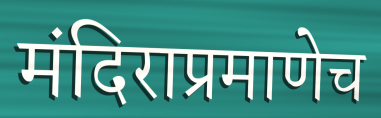
मंदिराप्रमाणेच